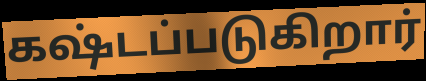
கஷ்டப்படுகிறார்